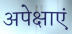
अपेक्षाएं